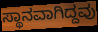
ಸ್ಥಾನವಾಗಿದ್ದವು